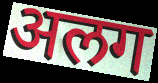
अलग